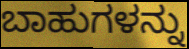
ಬಾಹುಗಳನ್ನು